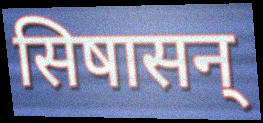
सिषासन्